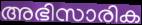
അഭിസാരിക